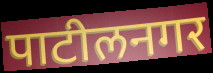
पाटीलनगर